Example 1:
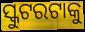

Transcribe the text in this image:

ସ୍କୁଟରଟାକୁ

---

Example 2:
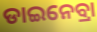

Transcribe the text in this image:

ଡାଇନେବ୍ରା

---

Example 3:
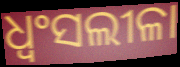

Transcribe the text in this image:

ଧ୍ବଂସଲୀଳା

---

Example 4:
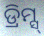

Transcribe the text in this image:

ଡ୍ରିମ୍ସ୍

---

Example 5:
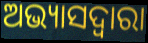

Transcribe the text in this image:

ଅଭ୍ୟାସଦ୍ୱାରା